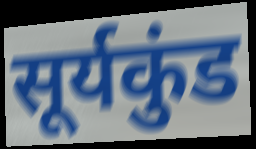
सूर्यकुंड